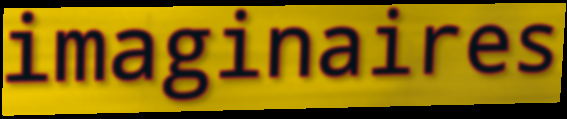
imaginaires